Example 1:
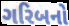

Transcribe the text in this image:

ગરિબનો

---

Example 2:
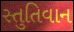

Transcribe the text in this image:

સ્તુતિવાન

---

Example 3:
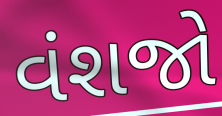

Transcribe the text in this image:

વંશજો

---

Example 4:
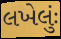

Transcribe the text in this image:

લખેલુંઃ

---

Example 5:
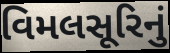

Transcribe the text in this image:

વિમલસૂરિનું